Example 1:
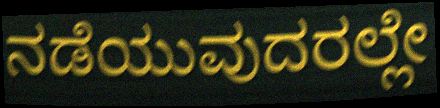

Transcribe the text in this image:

ನಡೆಯುವುದರಲ್ಲೇ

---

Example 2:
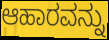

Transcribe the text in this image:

ಆಹಾರವನ್ನು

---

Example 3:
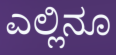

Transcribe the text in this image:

ಎಲ್ಲಿನೂ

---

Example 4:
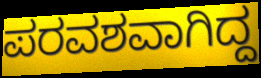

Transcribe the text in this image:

ಪರವಶವಾಗಿದ್ದ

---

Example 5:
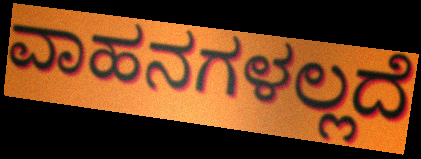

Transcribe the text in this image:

ವಾಹನಗಳಲ್ಲದೆ